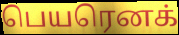
பெயரெனக்